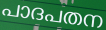
പാദപതന